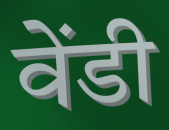
वेंडी